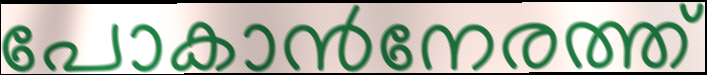
പോകാൻനേരത്ത്